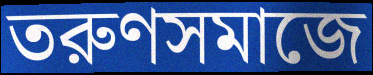
তরুণসমাজে